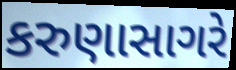
કરુણાસાગરે